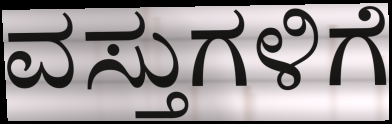
ವಸ್ತುಗಳಿಗೆ